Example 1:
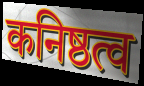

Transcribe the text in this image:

कनिष्ठत्व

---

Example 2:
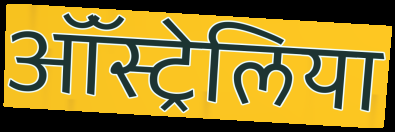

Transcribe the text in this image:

ऑॅस्ट्रेलिया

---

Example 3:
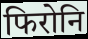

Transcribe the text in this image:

फिरोनि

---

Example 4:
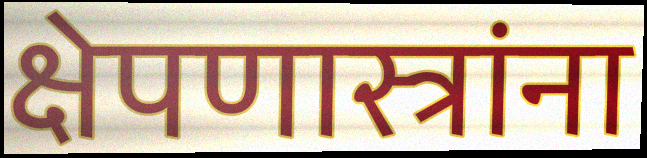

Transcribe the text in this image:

क्षेपणास्त्रांना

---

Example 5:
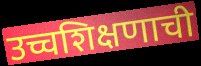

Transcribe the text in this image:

उच्चशिक्षणाची